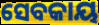
ସେବକାୟ